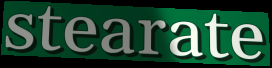
stearate